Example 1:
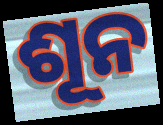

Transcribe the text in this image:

ଶୂନ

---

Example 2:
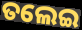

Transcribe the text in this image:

ତଲେଇ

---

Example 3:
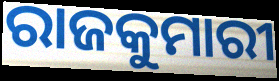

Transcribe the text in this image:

ରାଜକୁମାରୀ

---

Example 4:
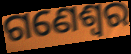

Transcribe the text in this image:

ଗଣେଶ୍ୱର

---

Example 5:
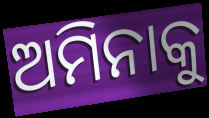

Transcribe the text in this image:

ଅମିନାକୁ